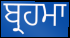
ਬ੍ਰਹਮਾ